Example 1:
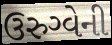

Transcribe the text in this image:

ઉરુગ્વેની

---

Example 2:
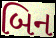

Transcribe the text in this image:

બિન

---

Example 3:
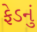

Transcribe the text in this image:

ફેડનું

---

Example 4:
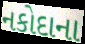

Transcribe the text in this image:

નકોદાના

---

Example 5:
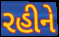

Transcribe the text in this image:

રહીને